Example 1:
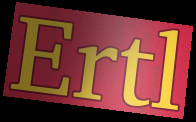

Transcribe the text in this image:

Ertl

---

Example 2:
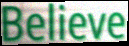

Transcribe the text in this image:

Believe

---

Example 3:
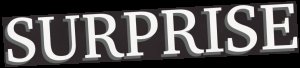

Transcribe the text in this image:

SURPRISE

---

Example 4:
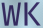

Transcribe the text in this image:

WK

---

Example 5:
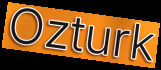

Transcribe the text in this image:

Ozturk